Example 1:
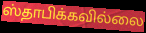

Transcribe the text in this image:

ஸ்தாபிக்கவில்லை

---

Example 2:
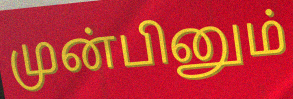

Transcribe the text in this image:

முன்பினும்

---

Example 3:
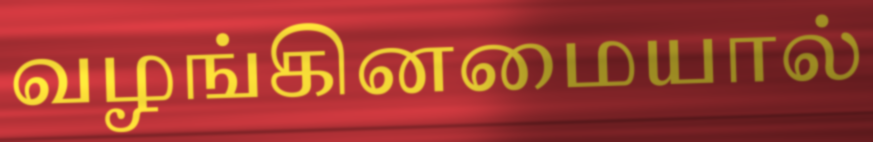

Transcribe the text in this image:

வழங்கினமையால்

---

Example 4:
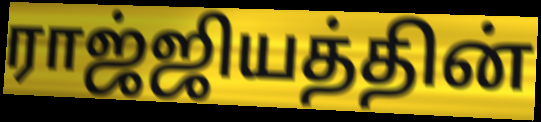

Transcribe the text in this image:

ராஜ்ஜியத்தின்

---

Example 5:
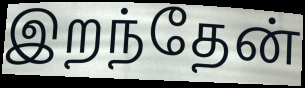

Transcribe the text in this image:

இறந்தேன்